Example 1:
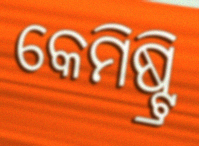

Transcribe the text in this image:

କେମିଷ୍ଟ୍ରି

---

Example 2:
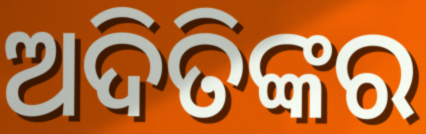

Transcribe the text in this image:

ଅଦିତିଙ୍କର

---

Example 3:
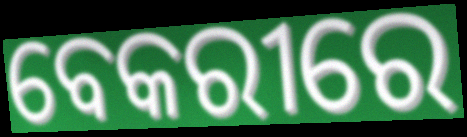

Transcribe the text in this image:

ବେକରୀରେ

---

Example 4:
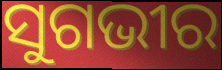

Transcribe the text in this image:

ସୁଗଭୀର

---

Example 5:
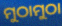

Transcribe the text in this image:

ମୁଠାମୁଠା